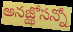
అనజ్ఝోసన్నో